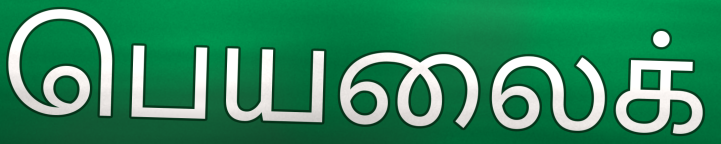
பெயலைக்